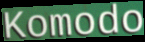
Komodo